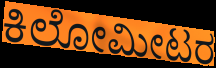
ಕಿಲೋಮೀಟರ